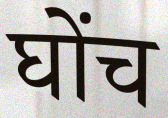
घोंच